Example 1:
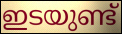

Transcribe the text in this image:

ഇടയുണ്ട്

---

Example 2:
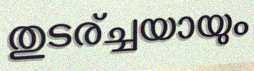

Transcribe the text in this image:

തുടര്ച്ചയായും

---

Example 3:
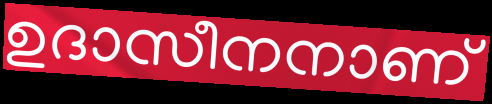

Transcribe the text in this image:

ഉദാസീനനാണ്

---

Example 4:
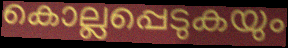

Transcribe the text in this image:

കൊല്ലപ്പെടുകയും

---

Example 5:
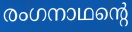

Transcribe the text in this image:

രംഗനാഥന്റെ